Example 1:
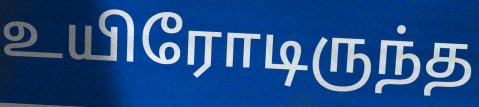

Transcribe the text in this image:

உயிரோடிருந்த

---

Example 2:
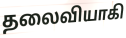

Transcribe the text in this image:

தலைவியாகி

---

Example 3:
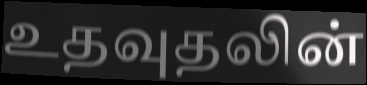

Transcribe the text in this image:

உதவுதலின்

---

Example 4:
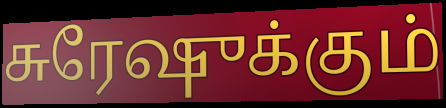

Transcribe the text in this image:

சுரேஷுக்கும்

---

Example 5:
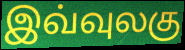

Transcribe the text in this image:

இவ்வுலகு